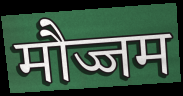
मौज्जम